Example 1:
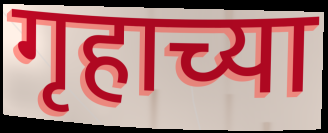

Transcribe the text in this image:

गृहाच्या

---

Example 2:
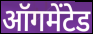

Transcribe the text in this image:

ऑगमेंटेड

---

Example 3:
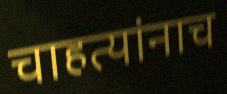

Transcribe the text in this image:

चाहत्यांनाच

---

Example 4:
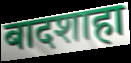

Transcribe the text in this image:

बादशाहा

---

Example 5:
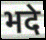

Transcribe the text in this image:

भदे